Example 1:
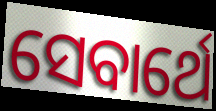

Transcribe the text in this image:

ସେବାର୍ଥେ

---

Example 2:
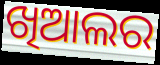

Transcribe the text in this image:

ଖିଆଲର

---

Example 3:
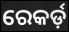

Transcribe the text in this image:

ରେକର୍ଡ଼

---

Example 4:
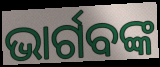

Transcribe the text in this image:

ଭାର୍ଗବଙ୍କ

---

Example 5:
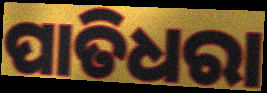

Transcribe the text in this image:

ପାତିଧରା